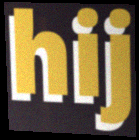
hij